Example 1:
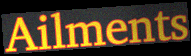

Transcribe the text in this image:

Ailments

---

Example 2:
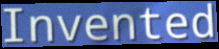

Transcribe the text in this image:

Invented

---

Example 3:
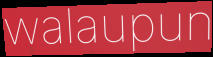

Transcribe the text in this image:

walaupun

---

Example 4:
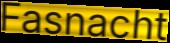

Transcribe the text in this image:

Fasnacht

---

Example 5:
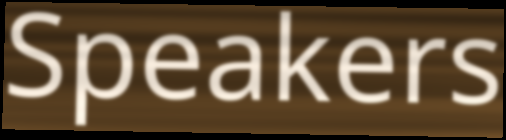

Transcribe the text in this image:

Speakers